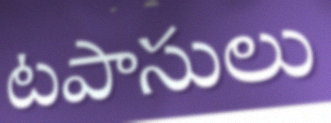
టపాసులు